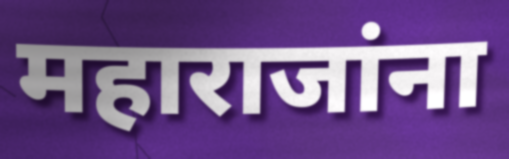
महाराजांना